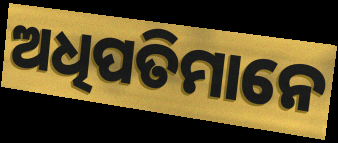
ଅଧିପତିମାନେ